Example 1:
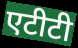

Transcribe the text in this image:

एटीटी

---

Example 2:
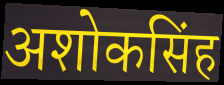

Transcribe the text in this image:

अशोकसिंह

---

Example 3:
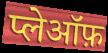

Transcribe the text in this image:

प्लेऑफ़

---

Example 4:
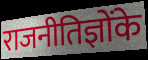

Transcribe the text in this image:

राजनीतिज्ञोंके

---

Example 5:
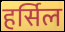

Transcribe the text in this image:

हर्सिल